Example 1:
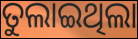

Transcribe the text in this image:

ତୁଲାଇଥିଲା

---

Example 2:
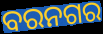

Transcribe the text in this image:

ବରନଗର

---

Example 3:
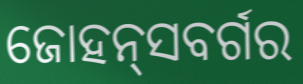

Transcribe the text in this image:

ଜୋହନ୍‌ସବର୍ଗର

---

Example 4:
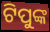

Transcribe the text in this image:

ଟିପୁଙ୍କ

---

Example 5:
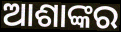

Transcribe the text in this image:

ଆଶାଙ୍କର